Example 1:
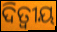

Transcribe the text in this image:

ଦିତ୍ୱୀୟ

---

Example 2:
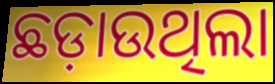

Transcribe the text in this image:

ଛଡ଼ାଉଥିଲା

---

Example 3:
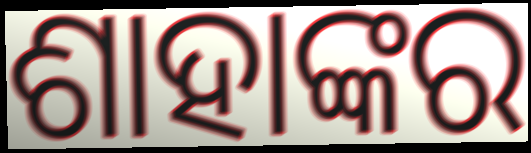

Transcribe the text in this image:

ଶାହାଙ୍କର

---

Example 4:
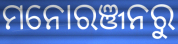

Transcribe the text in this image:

ମନୋରଞ୍ଜନରୁ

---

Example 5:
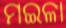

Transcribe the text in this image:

ମଇଳା